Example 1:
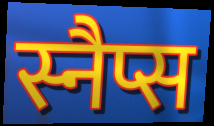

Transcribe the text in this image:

स्नैप्स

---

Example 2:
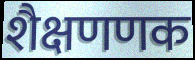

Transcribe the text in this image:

शैक्षणणक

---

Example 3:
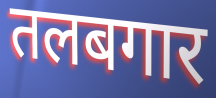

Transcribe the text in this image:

तलबगार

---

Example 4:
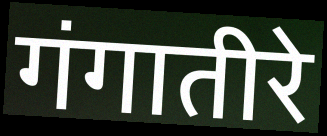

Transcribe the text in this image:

गंगातीरे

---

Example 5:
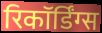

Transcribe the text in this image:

रिकॉर्डिंग्स